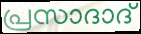
പ്രസാദാദ്